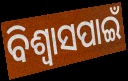
ବିଶ୍ୱାସପାଇଁ